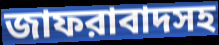
জাফরাবাদসহ